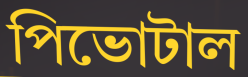
পিভোটাল